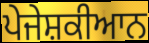
ਪੇਜੇਸ਼ਕੀਆਨ